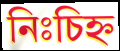
নিঃচিহ্ন